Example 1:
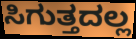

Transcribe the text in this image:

ಸಿಗುತ್ತದಲ್ಲ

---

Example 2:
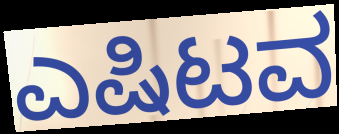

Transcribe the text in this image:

ಎಷಿಟವ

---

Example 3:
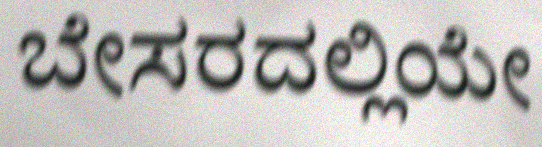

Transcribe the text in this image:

ಬೇಸರದಲ್ಲಿಯೇ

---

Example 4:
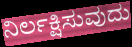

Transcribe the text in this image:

ನಿರ್ಲಕ್ಷಿಸುವುದು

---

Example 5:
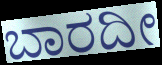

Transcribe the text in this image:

ಬಾರದೀ